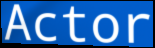
Actor